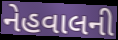
નેહવાલની